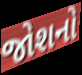
જોશનો